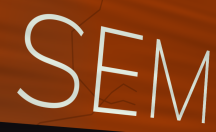
SEM